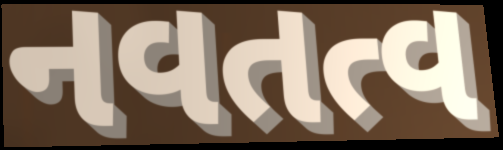
નવતત્વ